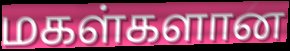
மகள்களான